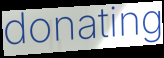
donating